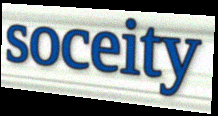
soceity